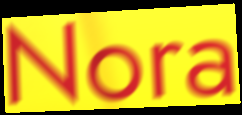
Nora